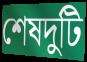
শেষদুটি